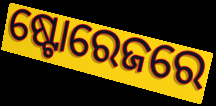
ଷ୍ଟୋରେଜରେ